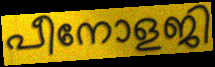
പീനോളജി